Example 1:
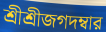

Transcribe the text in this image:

শ্রীশ্রীজগদম্বার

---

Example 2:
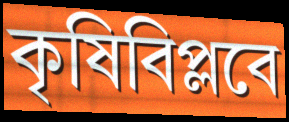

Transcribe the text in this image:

কৃষিবিপ্লবে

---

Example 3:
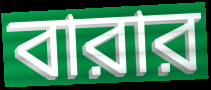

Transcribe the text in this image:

বারার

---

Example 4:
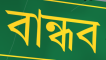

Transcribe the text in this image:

বান্ধব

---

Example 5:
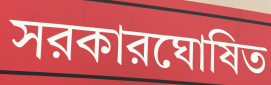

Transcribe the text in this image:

সরকারঘোষিত